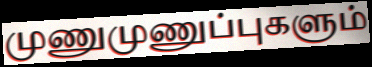
முணுமுணுப்புகளும்